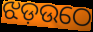
ଝଡ଼ଉଠେ